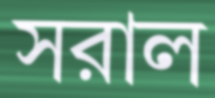
সরাল